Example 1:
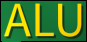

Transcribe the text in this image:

ALU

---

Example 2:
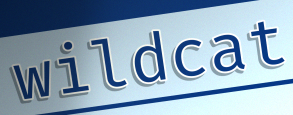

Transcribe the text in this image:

wildcat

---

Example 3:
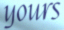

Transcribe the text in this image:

yours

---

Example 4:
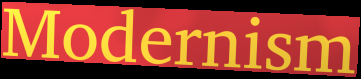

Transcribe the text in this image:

Modernism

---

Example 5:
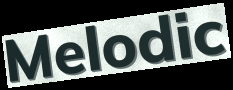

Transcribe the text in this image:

Melodic